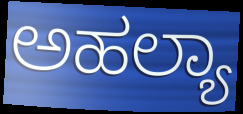
ಅಹಲ್ಯಾ